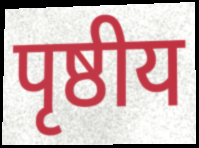
पृष्ठीय